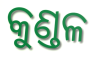
କୁଣ୍ଡଳ